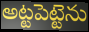
అట్టపెట్టెను